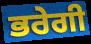
ਭਰੇਗੀ